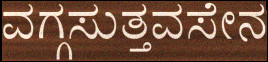
ವಗ್ಗಸುತ್ತವಸೇನ